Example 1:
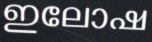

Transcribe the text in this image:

ഇലോഷ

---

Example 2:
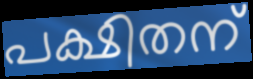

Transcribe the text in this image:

പക്ഷിതന്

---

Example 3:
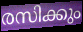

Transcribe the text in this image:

രസിക്കും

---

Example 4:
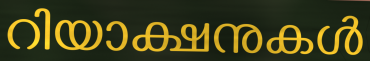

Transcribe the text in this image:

റിയാക്ഷനുകൾ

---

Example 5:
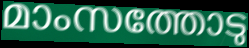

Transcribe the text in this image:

മാംസത്തോടു